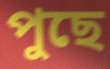
পুছে